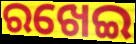
ରଖେଇ